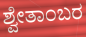
ಶ್ವೇತಾಂಬರ